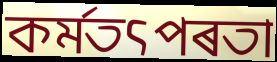
কৰ্মতৎপৰতা